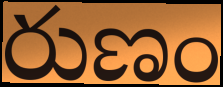
రుణం